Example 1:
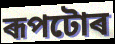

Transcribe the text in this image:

ৰূপটোৰ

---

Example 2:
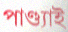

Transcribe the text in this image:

পাণ্ড্যাই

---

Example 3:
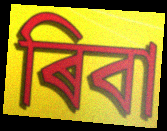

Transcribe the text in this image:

ৰিবা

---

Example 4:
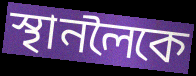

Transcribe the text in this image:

স্থানলৈকে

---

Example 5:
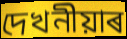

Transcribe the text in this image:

দেখনীয়াৰ